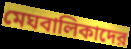
মেঘবালিকাদের